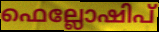
ഫെല്ലോഷിപ്